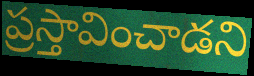
ప్రస్తావించాడని